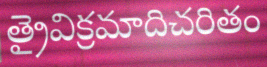
త్రైవిక్రమాదిచరితం